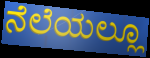
ನೆಲೆಯಲ್ಲೂ